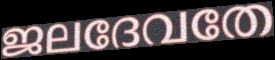
ജലദേവതേ